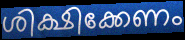
ശിക്ഷിക്കേണം